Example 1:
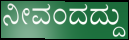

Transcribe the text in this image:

ನೀವಂದದ್ದು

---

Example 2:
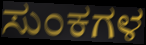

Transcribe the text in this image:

ಸುಂಕಗಳ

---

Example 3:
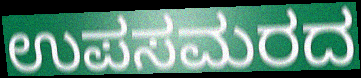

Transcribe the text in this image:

ಉಪಸಮರದ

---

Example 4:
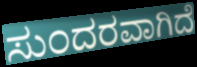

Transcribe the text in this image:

ಸುಂದರವಾಗಿದೆ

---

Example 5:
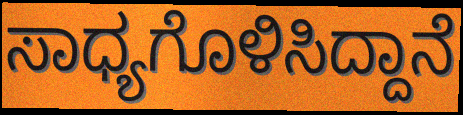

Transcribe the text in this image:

ಸಾಧ್ಯಗೊಳಿಸಿದ್ದಾನೆ